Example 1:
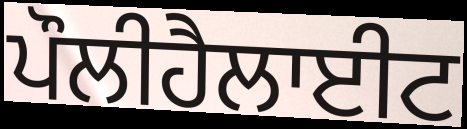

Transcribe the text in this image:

ਪੌਲੀਹੈਲਾਈਟ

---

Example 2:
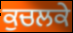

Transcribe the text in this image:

ਕੁਚਲਕੇ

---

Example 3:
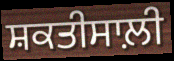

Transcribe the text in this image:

ਸ਼ਕਤੀਸਾਲ਼ੀ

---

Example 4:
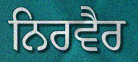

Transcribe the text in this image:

ਨਿਰਵੈਰ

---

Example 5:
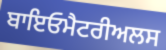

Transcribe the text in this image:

ਬਾਇਓਮੈਟਰੀਅਲਸ